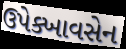
ઉપેક્ખાવસેન